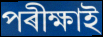
পৰীক্ষাই